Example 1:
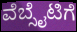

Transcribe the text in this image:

ವೆಬ್ಸೈಟಿಗೆ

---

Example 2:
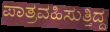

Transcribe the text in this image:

ಪಾತ್ರವಹಿಸುತ್ತಿದ್ದ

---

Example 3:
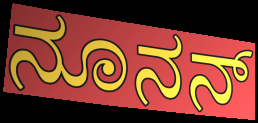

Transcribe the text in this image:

ನೂನನ್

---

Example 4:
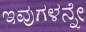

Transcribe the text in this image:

ಇವುಗಳನ್ನೇ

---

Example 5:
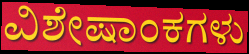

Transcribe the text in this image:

ವಿಶೇಷಾಂಕಗಳು